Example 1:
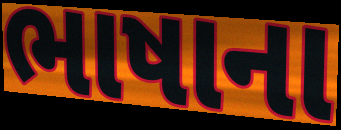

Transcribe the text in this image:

ભાષાના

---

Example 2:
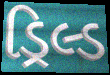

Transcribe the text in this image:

ડ્રિલ્ડ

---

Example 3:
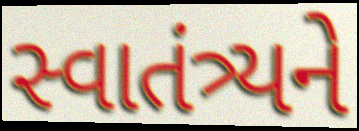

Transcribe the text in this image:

સ્વાતંત્ર્યને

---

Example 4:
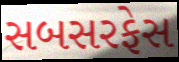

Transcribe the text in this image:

સબસરફેસ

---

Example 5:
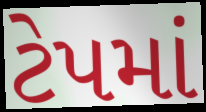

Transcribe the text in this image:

ટેપમાં